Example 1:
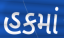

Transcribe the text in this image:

હકમાં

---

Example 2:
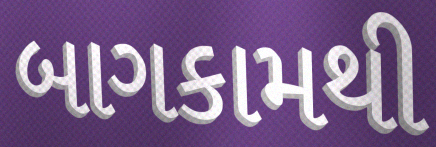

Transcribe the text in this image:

બાગકામથી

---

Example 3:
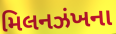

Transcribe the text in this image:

મિલનઝંખના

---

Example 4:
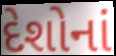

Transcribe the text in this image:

દેશોનાં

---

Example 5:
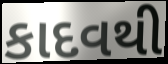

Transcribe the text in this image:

કાદવથી